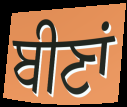
ਬੀਣਾਂ